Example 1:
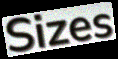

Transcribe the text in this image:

Sizes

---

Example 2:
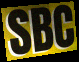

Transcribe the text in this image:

SBC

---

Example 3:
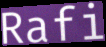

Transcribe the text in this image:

Rafi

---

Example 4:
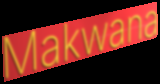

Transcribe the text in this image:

Makwana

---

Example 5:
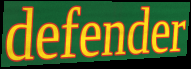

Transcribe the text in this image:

defender